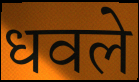
धवले